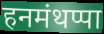
हनमंथप्पा